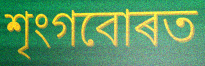
শৃংগবোৰত